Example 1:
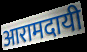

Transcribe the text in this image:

आरामदायी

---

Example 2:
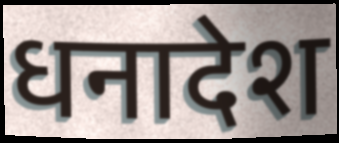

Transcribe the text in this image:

धनादेश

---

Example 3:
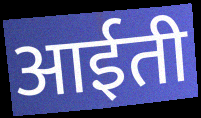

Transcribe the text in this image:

आईती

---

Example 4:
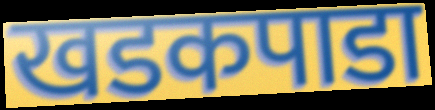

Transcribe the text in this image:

खडकपाडा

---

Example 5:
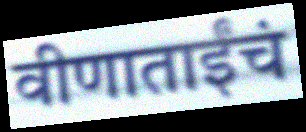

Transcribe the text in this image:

वीणाताईंचं